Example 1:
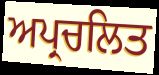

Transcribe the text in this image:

ਅਪ੍ਰਚਲਿਤ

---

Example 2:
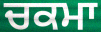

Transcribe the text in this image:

ਚਕਮਾ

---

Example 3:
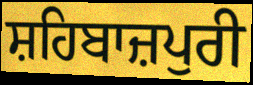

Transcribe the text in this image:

ਸ਼ਹਿਬਾਜ਼ਪੁਰੀ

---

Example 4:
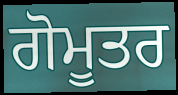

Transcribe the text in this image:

ਗੋਮੂਤਰ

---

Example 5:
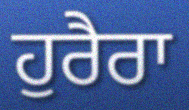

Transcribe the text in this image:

ਹੁਰੈਰਾ